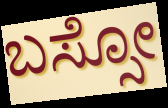
ಬಸ್ಸೋ